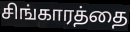
சிங்காரத்தை